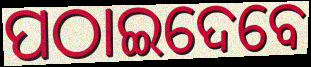
ପଠାଇଦେବେ